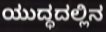
ಯುದ್ಧದಲ್ಲಿನ